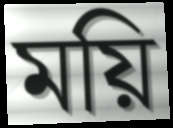
ময়ি